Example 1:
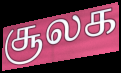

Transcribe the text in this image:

சூலக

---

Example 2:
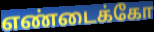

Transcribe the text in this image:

எண்டைக்கோ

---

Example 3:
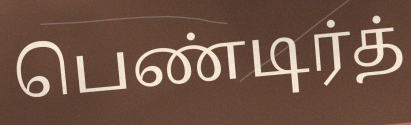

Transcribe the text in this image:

பெண்டிர்த்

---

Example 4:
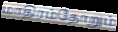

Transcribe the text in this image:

மாதிரம்தோறும்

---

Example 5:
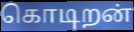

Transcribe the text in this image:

கொடிறன்